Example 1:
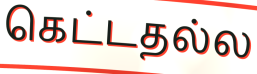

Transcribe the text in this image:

கெட்டதல்ல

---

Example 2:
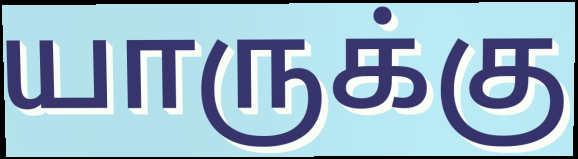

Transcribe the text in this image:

யாருக்கு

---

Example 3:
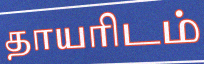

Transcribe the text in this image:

தாயரிடம்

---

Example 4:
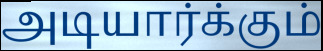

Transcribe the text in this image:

அடியார்க்கும்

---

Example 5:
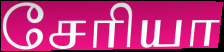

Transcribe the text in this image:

சேரியா